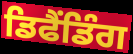
ਡਿਫੈਂਡਿੰਗ